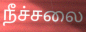
நீச்சலை